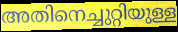
അതിനെച്ചുറ്റിയുള്ള